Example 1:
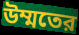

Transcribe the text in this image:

উম্মতের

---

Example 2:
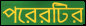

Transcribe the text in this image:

পরেরটির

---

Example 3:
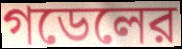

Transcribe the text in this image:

গডেলের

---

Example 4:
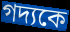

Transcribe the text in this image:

গদ্যকে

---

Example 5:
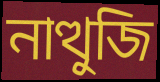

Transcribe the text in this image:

নাত্থুজি